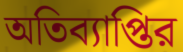
অতিব্যাপ্তির